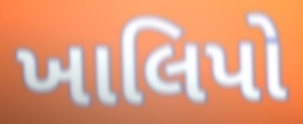
ખાલિપો